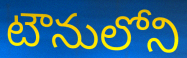
టౌనులోని